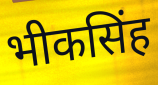
भीकसिंह